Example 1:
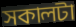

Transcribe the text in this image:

সকালটা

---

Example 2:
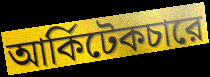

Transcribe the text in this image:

আর্কিটেকচারে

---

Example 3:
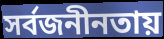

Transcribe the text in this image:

সর্বজনীনতায়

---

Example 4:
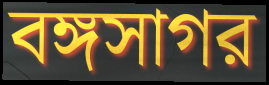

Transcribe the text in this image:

বঙ্গসাগর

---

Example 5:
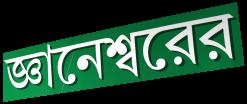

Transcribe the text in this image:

জ্ঞানেশ্বরের